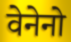
वेनेनो